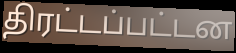
திரட்டப்பட்டன